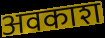
अवकाश